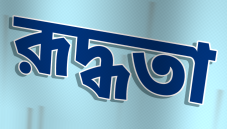
রূদ্ধতা